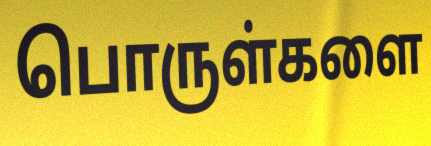
பொருள்களை